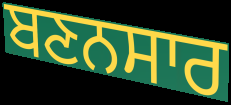
ਬਣਨਸਾਰ